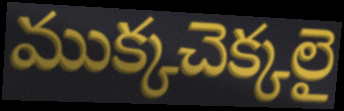
ముక్కచెక్కలై